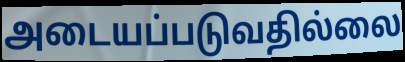
அடையப்படுவதில்லை